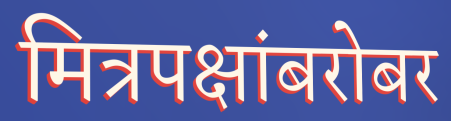
मित्रपक्षांबरोबर